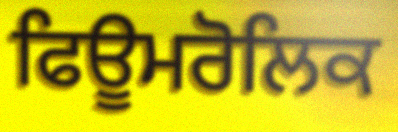
ਫਿਊਮਰੋਲਿਕ